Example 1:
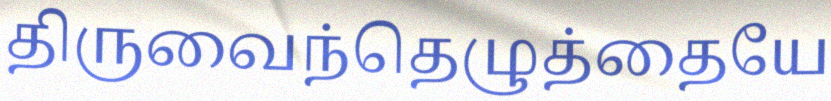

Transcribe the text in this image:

திருவைந்தெழுத்தையே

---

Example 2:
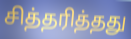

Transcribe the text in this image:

சித்தரித்தது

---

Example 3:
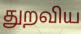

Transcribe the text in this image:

துறவிய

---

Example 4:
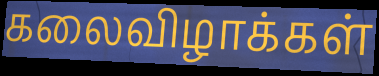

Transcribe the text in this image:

கலைவிழாக்கள்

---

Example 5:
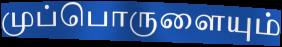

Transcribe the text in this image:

முப்பொருளையும்